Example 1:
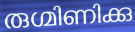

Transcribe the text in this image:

രുഗ്മിണിക്കു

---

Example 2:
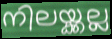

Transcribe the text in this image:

നിലയ്ക്കല്ല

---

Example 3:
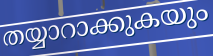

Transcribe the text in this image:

തയ്യാറാക്കുകയും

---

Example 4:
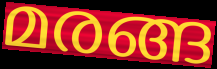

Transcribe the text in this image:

മരങ്ങ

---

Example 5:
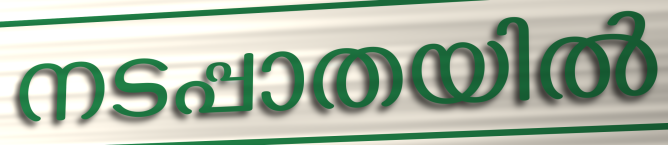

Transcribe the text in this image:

നടപ്പാതയിൽ